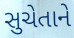
સુચેતાને